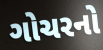
ગોચરનો